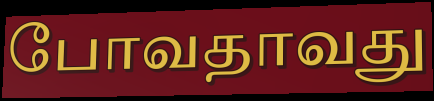
போவதாவது